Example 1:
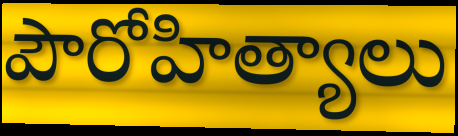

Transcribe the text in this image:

పౌరోహిత్యాలు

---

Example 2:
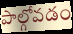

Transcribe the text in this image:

పాల్గోవడం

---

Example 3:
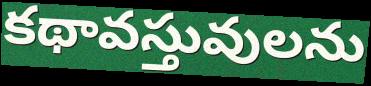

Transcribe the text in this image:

కథావస్తువులను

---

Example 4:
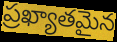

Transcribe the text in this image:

ప్రఖ్యాతమైన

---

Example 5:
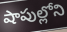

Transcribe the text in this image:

షాపుల్లోని